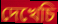
দেখেচি